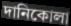
দানিকোলা